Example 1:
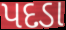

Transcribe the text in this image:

પદડા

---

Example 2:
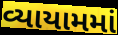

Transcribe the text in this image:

વ્યાયામમાં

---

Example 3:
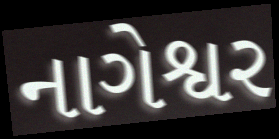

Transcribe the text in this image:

નાગેશ્વર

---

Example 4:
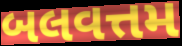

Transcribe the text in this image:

બલવત્તમ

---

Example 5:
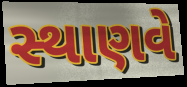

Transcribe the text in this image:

સ્થાણવે